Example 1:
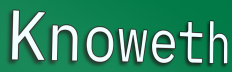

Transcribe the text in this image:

Knoweth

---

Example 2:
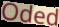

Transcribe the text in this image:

Oded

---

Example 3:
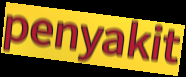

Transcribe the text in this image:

penyakit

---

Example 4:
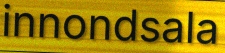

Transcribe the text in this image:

innondsala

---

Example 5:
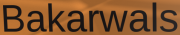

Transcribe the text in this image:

Bakarwals